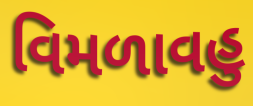
વિમળાવહુ